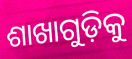
ଶାଖାଗୁଡ଼ିକୁ